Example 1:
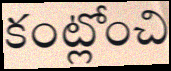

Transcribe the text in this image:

కంట్లోంచి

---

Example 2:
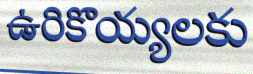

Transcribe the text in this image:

ఉరికొయ్యలకు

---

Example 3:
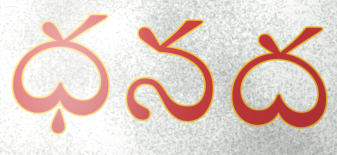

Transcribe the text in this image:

ధనద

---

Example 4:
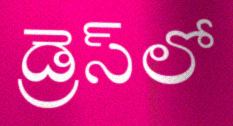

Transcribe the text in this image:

డ్రెస్‌లో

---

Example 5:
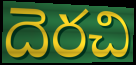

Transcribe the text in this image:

దెరచి